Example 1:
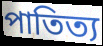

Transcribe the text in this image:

পাতিত্য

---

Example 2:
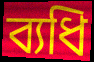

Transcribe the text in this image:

ব্যধি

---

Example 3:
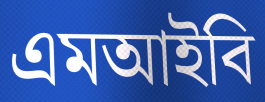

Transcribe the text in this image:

এমআইবি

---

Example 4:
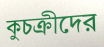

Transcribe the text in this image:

কুচক্রীদের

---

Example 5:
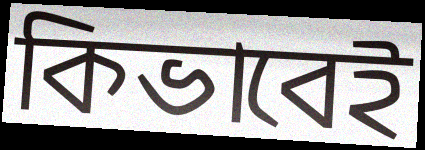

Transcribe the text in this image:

কিভাবেই